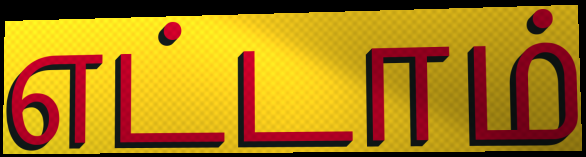
எட்டாம்